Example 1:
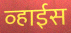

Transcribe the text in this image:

व्हाईस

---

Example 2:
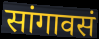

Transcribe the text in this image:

सांगावसं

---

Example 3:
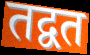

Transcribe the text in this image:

तद्वत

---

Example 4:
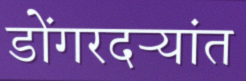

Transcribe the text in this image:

डोंगरदऱ्यांत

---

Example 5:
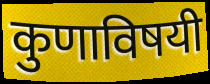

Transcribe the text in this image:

कुणाविषयी